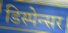
डिस्पेन्सर